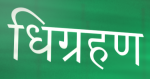
धिग्रहण